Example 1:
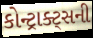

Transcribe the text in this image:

કોન્ટ્રાક્ટ્સની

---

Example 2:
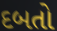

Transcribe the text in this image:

દબતો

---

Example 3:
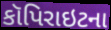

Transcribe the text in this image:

કૉપિરાઇટના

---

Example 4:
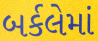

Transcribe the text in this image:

બર્કલેમાં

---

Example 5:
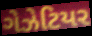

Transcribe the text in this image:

ગેઝેટિયર